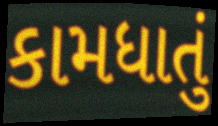
કામધાતું